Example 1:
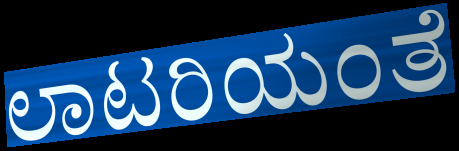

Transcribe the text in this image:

ಲಾಟರಿಯಂತೆ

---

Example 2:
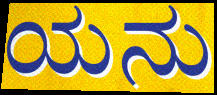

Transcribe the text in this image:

ಯನು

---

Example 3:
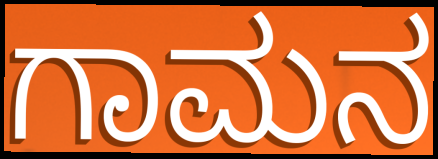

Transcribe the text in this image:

ಗಾಮನ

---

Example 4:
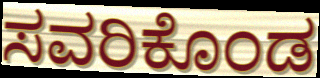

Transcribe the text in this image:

ಸವರಿಕೊಂಡ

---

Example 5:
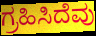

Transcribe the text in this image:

ಗ್ರಹಿಸಿದೆವು